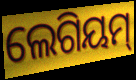
ଲେଗିୟମ୍